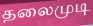
தலைமுடி